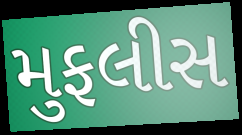
મુફલીસ